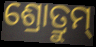
ଶ୍ରୋତ୍ରୁମ୍